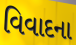
વિવાદના